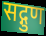
सद्गुण